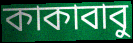
কাকাবাবু